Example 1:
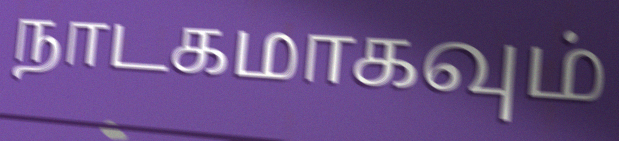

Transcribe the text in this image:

நாடகமாகவும்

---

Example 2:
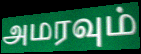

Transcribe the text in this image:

அமரவும்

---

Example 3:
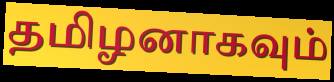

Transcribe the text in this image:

தமிழனாகவும்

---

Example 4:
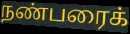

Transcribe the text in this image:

நண்பரைக்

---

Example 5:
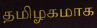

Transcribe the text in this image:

தமிழகமாக